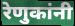
रेणुकांनी